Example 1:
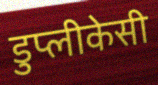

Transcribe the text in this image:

डुप्लीकेसी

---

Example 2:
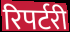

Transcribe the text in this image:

रिपर्टरी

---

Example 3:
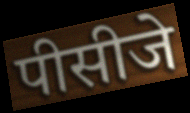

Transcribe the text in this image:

पीसीजे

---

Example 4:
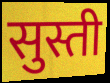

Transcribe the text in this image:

सुस्ती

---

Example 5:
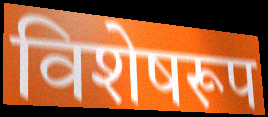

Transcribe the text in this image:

विशेषरूप